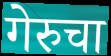
गेरुचा